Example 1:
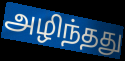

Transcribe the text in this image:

அழிந்தது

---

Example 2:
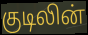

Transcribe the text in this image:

குடிலின்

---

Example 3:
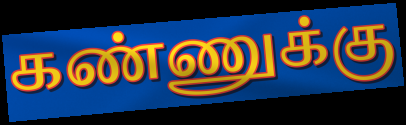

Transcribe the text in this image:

கண்ணுக்கு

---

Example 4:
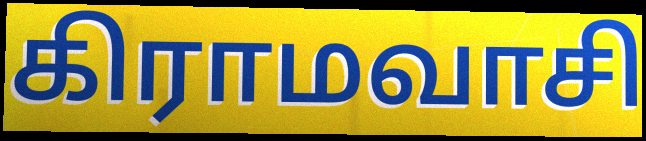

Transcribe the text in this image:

கிராமவாசி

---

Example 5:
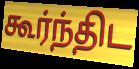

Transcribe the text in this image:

கூர்ந்திட